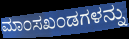
ಮಾಂಸಖಂಡಗಳನ್ನು